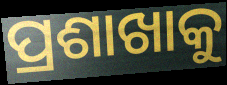
ପ୍ରଶାଖାକୁ